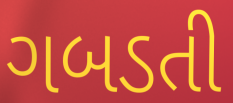
ગબડતી